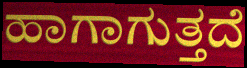
ಹಾಗಾಗುತ್ತದೆ